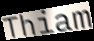
Thiam